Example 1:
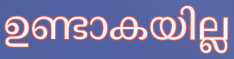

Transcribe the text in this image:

ഉണ്ടാകയില്ല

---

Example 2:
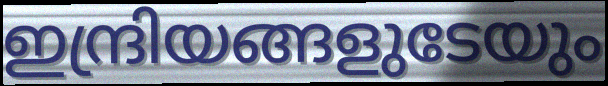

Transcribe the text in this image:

ഇന്ദ്രിയങ്ങളുടേയും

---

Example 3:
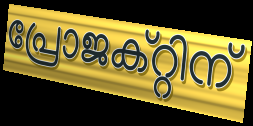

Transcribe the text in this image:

പ്രോജക്റ്റിന്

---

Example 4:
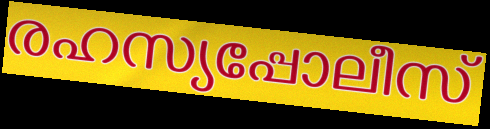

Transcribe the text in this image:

രഹസ്യപ്പോലീസ്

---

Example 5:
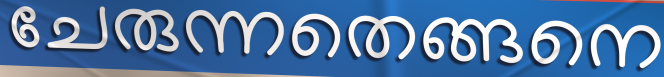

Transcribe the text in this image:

ചേരുന്നതെങ്ങനെ